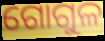
ଗୋଗୁଳ